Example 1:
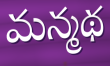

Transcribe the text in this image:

మన్మథ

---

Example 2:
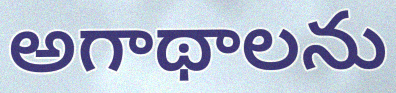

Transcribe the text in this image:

అగాథాలను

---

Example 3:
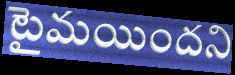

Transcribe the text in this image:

టైమయిందని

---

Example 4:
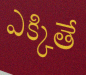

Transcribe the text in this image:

ఎక్కితే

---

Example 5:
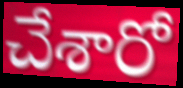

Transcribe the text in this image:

చేశారో